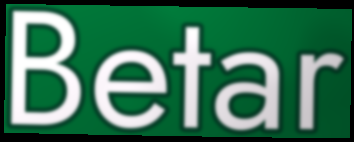
Betar